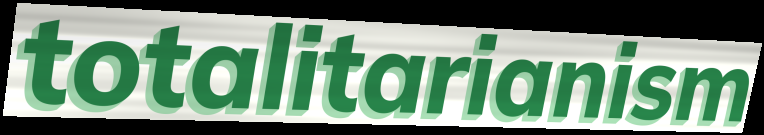
totalitarianism